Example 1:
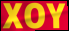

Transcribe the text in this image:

XOY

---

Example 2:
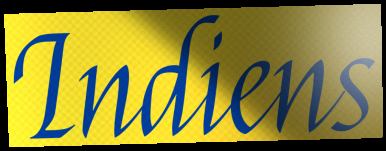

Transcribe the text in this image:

Indiens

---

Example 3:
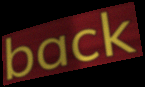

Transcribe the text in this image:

back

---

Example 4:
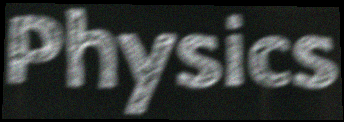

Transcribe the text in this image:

Physics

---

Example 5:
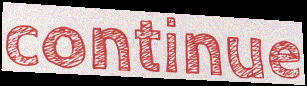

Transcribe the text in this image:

continue